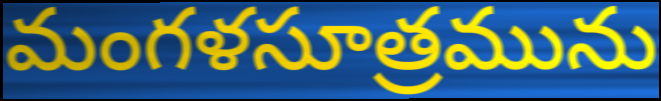
మంగళసూత్రమును